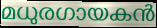
മധുരഗായകൻ